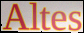
Altes